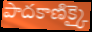
పాదకాణిక్కై